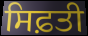
ਸਿਫ਼ਤੀ